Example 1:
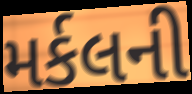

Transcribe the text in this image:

મર્કલની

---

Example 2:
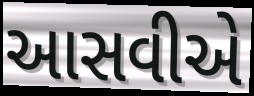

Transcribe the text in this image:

આસવીએ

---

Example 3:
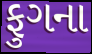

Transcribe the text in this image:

ફુગના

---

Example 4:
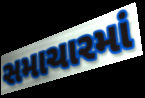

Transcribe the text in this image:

સમાચારમાં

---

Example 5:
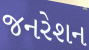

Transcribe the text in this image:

જનરેશન